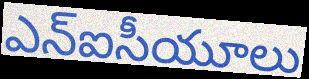
ఎన్ఐసీయూలు